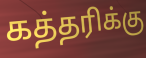
கத்தரிக்கு